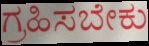
ಗ್ರಹಿಸಬೇಕು